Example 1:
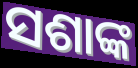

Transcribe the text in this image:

ସଶାଙ୍କ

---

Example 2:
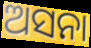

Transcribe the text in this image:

ଅସନା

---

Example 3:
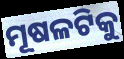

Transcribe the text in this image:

ମୂଷଳଟିକୁ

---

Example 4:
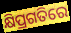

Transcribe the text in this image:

କ୍ଷିପ୍ରଗତିରେ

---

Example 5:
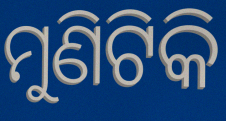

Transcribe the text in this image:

ମୁଣିଟିକି